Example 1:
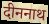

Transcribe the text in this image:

दीननाथ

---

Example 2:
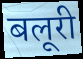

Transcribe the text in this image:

बलूरी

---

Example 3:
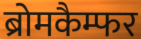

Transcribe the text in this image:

ब्रोमकैम्फर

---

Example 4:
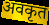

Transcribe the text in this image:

अवकृत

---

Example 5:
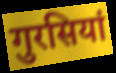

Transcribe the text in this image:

गुरसियां